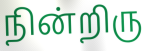
நின்றிரு